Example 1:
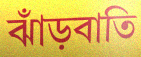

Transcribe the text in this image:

ঝাঁড়বাতি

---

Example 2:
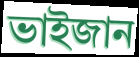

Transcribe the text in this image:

ভাইজান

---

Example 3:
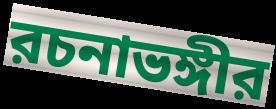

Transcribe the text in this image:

রচনাভঙ্গীর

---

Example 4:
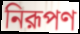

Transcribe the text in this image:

নিরূপণ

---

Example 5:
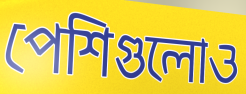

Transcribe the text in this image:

পেশিগুলোও